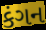
કંગન